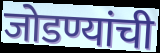
जोडण्यांची